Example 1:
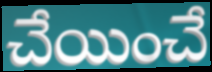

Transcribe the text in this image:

చేయించే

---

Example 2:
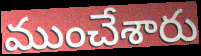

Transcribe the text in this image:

ముంచేశారు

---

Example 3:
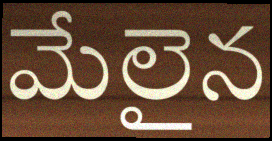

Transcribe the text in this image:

మేలైన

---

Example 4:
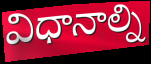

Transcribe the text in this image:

విధానాల్ని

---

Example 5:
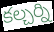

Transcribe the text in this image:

కల్చర్ని